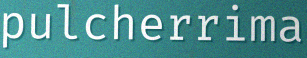
pulcherrima